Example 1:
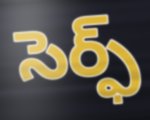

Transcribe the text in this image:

సెర్ఫ్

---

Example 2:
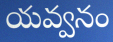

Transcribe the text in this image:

యవ్వనం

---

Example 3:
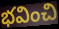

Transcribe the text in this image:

భవించి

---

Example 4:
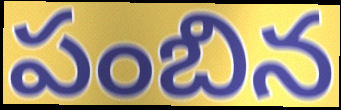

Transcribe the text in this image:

పంబిన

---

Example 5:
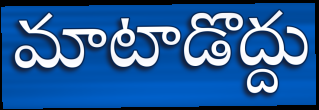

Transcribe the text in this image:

మాటాడొద్దు